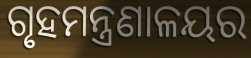
ଗୃହମନ୍ତ୍ରଣାଳୟର